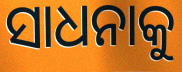
ସାଧନାକୁ